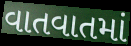
વાતવાતમાં